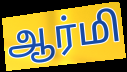
ஆர்மி